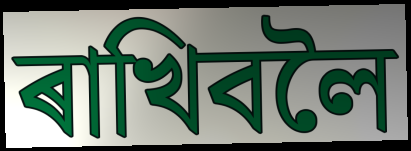
ৰাখিবলৈ